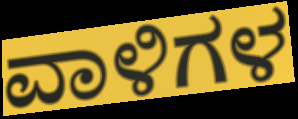
ವಾಳಿಗಳ